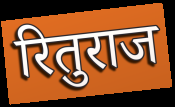
रितुराज